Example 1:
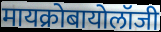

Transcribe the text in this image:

मायक्रोबायोलॉजी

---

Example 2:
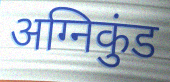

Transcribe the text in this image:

अग्निकुंड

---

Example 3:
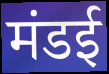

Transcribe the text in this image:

मंडई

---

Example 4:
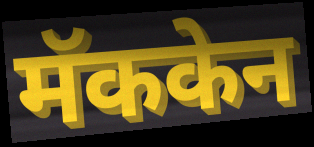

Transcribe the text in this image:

मॅककेन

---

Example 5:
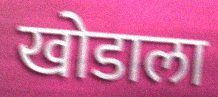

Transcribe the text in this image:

खोडाला